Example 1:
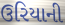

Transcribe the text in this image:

ઉરિયાની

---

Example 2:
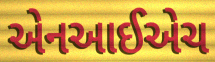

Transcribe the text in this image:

એનઆઈએચ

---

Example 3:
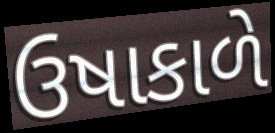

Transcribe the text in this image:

ઉષાકાળે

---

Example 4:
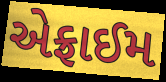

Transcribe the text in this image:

એફ્રાઈમ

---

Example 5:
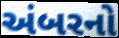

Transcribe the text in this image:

અંબરનો